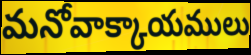
మనోవాక్కాయములు